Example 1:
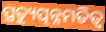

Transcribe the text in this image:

ପ୍ରତ୍ୟୁତ୍ପନ୍ନମତିତ୍ୱ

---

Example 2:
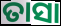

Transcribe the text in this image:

ତାସା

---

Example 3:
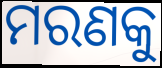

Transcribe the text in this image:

ମରଣକୁ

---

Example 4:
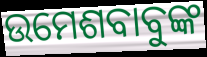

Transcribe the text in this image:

ଉମେଶବାବୁଙ୍କ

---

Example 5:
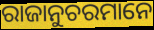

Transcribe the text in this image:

ରାଜାନୁଚରମାନେ